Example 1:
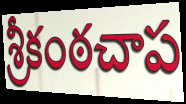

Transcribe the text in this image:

శ్రీకంఠచాప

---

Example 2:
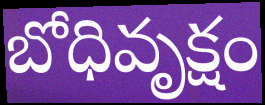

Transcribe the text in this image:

బోధివృక్షం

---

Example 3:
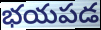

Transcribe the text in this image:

భయపడ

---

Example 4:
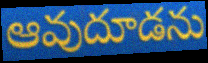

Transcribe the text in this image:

ఆవుదూడను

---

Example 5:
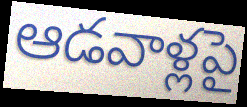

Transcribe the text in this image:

ఆడవాళ్లపై